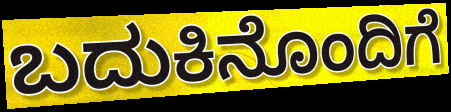
ಬದುಕಿನೊಂದಿಗೆ